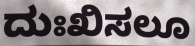
ದುಃಖಿಸಲೂ